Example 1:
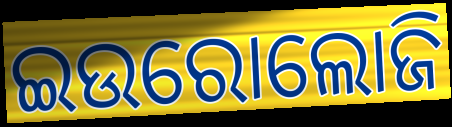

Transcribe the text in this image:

ଇଉରୋଲୋଜି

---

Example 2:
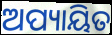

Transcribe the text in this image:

ଅପ୍ୟାୟିତ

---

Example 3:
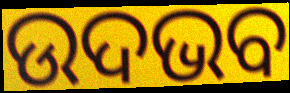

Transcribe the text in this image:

ଉଦଭବ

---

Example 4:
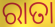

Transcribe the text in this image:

ରାତା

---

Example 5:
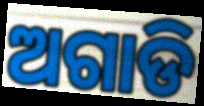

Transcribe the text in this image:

ଅଗାଡି